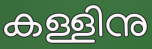
കള്ളിനു